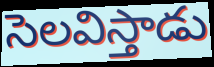
సెలవిస్తాడు